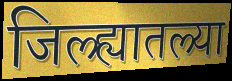
जिल्ह्यातल्या